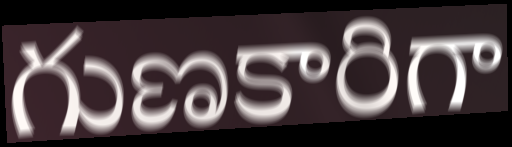
గుణకారిగా